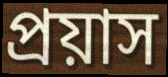
প্ৰয়াস